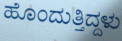
ಹೊಂದುತ್ತಿದ್ದಳು